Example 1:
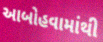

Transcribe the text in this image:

આબોહવામાંથી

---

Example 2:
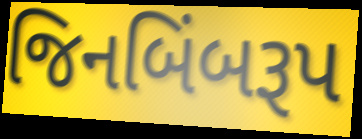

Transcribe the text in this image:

જિનબિંબરૂપ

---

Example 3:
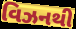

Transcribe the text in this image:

વિઝનથી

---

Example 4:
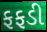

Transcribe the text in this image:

ફફડી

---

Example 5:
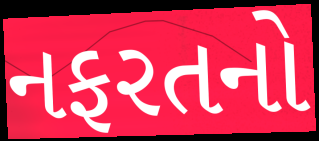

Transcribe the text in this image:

નફરતનો